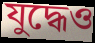
যুদ্ধেও